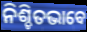
ନିଶ୍ଚିତଭାବେ